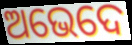
ଅଭେଦେ